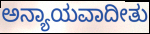
ಅನ್ಯಾಯವಾದೀತು